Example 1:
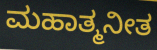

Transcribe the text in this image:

ಮಹಾತ್ಮನೀತ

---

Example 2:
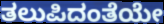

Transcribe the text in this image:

ತಲುಪಿದಂತೆಯೇ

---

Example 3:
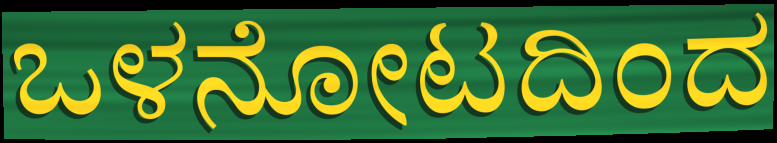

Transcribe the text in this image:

ಒಳನೋಟದಿಂದ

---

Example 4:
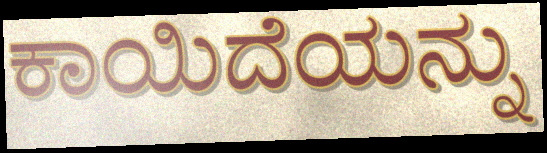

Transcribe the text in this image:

ಕಾಯಿದೆಯನ್ನು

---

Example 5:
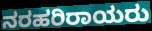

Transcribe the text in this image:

ನರಹರಿರಾಯರು